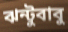
ঝন্টুবাবু